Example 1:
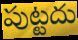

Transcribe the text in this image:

పుట్టదు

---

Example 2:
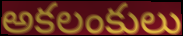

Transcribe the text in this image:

అకలంకులు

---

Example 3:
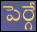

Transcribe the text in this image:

పెర్గే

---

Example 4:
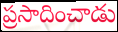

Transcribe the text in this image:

ప్రసాదించాడు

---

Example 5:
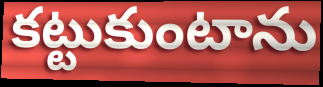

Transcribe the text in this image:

కట్టుకుంటాను